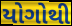
યોગોથી